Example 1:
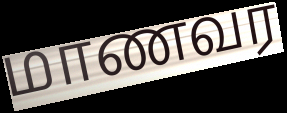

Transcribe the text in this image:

மாணவர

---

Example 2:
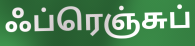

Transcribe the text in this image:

ஃப்ரெஞ்சுப்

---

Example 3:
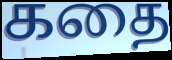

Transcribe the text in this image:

கதை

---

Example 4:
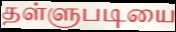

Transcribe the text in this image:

தள்ளுபடியை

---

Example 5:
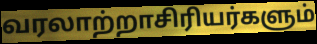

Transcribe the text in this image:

வரலாற்றாசிரியர்களும்